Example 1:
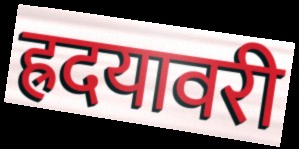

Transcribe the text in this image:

ह्रदयावरी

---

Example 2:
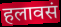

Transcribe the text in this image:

हलावसं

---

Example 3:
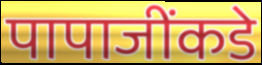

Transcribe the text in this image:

पापाजींकडे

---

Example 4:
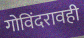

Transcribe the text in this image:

गोविंदरावही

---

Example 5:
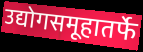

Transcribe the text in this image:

उद्योगसमूहातर्फे